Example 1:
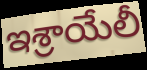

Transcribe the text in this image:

ఇశ్రాయేలీ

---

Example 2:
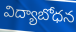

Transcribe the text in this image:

విద్యాబోధన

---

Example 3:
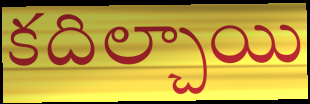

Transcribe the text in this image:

కదిల్చాయి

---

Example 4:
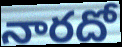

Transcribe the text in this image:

నారదో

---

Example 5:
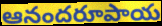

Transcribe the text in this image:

ఆనందరూపాయ